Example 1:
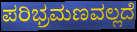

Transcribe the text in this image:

ಪರಿಭ್ರಮಣವಲ್ಲದೆ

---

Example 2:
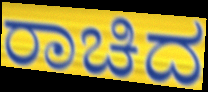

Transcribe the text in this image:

ರಾಚಿದ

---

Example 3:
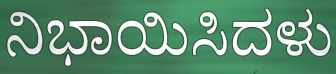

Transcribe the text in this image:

ನಿಭಾಯಿಸಿದಳು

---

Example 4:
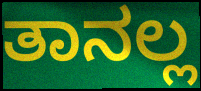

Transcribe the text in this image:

ತಾನಲ್ಲ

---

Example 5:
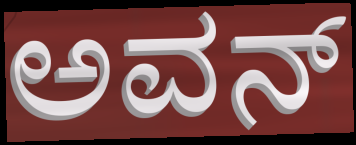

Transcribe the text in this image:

ಅವನ್